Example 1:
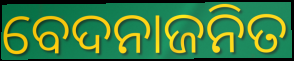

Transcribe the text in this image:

ବେଦନାଜନିତ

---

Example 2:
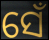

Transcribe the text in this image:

ସେଁ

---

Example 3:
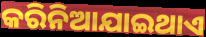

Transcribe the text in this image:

କରିନିଆଯାଇଥାଏ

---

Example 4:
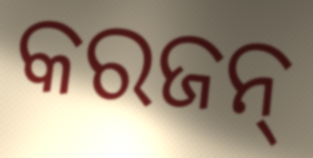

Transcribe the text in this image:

କରଜନ୍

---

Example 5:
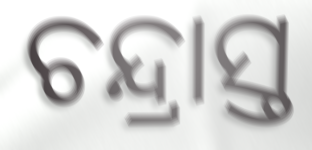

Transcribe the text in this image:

ଚନ୍ଦ୍ରାସ୍ତ